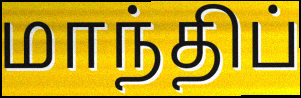
மாந்திப்